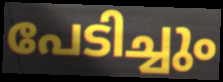
പേടിച്ചും